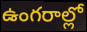
ఉంగరాల్లో